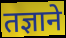
तज्ञाने